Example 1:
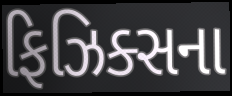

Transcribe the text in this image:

ફિઝિક્સના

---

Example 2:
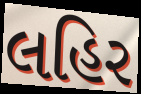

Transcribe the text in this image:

લહિર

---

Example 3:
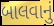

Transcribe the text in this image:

બાલવાનું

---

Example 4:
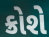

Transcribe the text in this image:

ક્રોશે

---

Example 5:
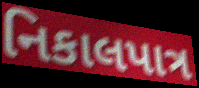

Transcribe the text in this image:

નિકાલપાત્ર